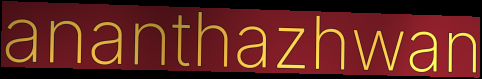
ananthazhwan